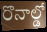
రొనాల్డో